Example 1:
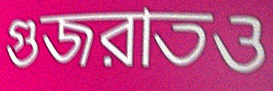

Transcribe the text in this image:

গুজরাতও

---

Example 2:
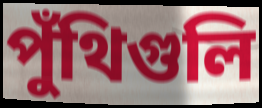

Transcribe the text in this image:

পুঁথিগুলি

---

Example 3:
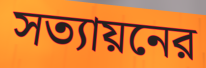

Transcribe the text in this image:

সত্যায়নের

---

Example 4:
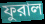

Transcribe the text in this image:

ফুরাল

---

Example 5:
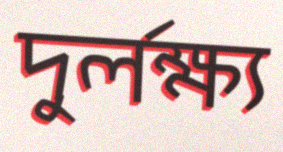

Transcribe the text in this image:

দুর্লক্ষ্য